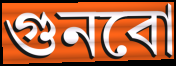
গুনবো